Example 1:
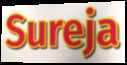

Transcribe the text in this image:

Sureja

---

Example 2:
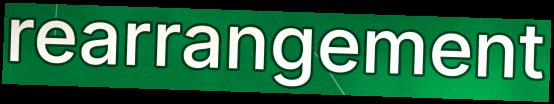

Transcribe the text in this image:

rearrangement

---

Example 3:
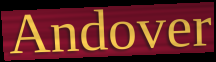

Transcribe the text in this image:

Andover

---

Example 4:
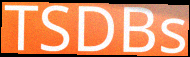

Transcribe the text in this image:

TSDBs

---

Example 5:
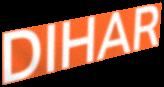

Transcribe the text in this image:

DIHAR